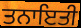
ਤਨਾਇਤੀ